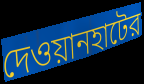
দেওয়ানহাটের